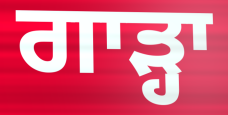
ਗਾੜ੍ਹਾ